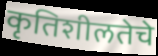
कृतिशीलतेचे